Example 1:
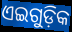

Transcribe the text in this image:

ଏଇଗୁଡ଼ିକ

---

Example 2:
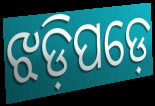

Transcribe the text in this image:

ଝଡ଼ିପଡ଼େ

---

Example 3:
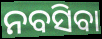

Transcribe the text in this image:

ନବସିବା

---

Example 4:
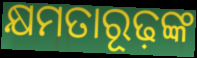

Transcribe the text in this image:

କ୍ଷମତାରୂଢ଼ଙ୍କ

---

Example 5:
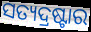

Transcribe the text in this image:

ସତ୍ୟଦ୍ରଷ୍ଟାର